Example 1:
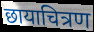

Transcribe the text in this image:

छायाचित्रण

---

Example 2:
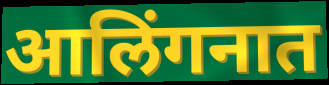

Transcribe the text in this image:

आलिंगनात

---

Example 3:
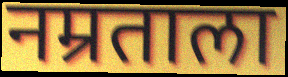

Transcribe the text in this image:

नम्रताला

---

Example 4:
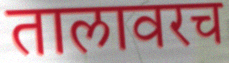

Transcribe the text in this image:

तालावरच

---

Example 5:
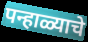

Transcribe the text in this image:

पन्हाळ्याचे